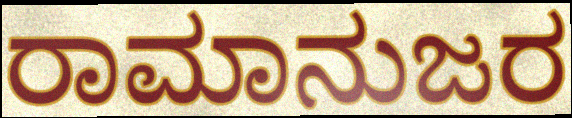
ರಾಮಾನುಜರ